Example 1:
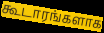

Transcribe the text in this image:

கூடாரங்களாக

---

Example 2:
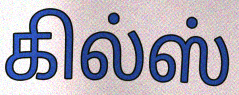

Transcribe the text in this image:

கில்ஸ்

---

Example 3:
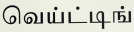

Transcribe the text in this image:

வெய்ட்டிங்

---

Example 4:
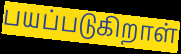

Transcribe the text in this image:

பயப்படுகிறாள்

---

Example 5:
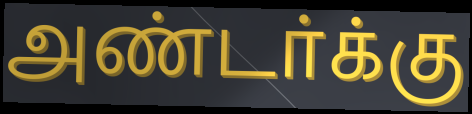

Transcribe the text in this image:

அண்டர்க்கு